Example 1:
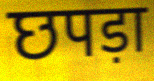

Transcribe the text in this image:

छपड़ा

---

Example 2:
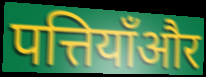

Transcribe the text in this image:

पत्तियाँऔर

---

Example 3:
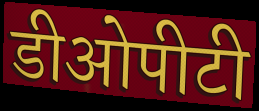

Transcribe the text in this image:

डीओपीटी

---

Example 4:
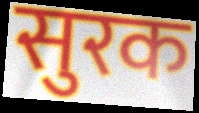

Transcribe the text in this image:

सुरक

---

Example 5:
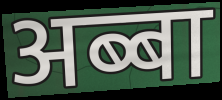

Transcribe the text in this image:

अब्बा